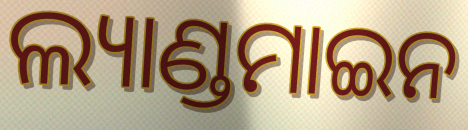
ଲ୍ୟାଣ୍ଡମାଇନ